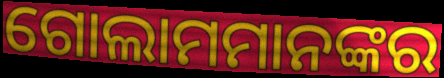
ଗୋଲାମମାନଙ୍କର